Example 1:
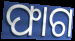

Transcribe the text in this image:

ଫାଗ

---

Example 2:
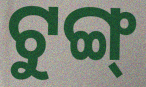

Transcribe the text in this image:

ଟୁଙ୍ଗ୍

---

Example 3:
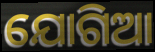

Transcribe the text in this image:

ଯୋଗିଆ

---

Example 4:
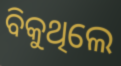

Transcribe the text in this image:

ବିକୁଥିଲେ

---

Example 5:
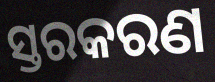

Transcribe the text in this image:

ସ୍ତରକରଣ